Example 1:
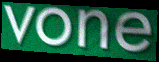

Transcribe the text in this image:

vone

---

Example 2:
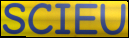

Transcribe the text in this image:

SCIEU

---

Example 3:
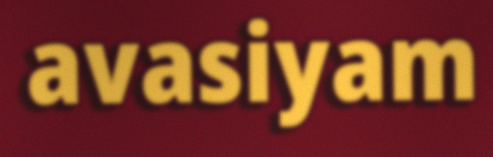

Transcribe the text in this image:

avasiyam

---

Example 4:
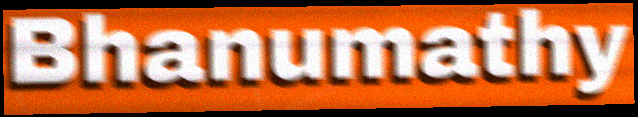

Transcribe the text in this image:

Bhanumathy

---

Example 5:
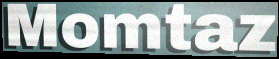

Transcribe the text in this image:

Momtaz